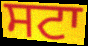
ਸਟਾ